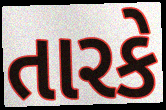
તારકે